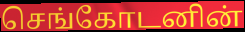
செங்கோடனின்